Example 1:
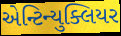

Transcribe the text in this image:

એન્ટિન્યુક્લિયર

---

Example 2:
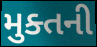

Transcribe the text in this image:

મુક્તની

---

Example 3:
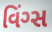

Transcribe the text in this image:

વિંગ્સ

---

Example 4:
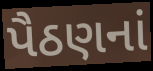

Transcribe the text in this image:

પૈઠણનાં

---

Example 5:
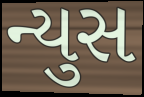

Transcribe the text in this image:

ન્યુસ